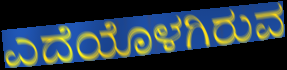
ಎದೆಯೊಳಗಿರುವ